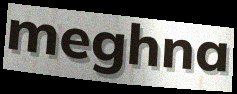
meghna